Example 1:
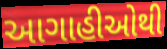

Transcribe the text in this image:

આગાહીઓથી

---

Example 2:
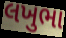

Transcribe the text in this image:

લખુભા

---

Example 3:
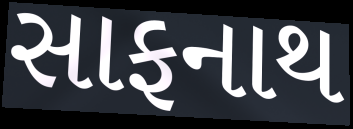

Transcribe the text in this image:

સાફનાથ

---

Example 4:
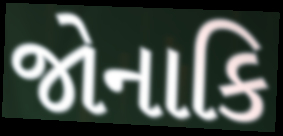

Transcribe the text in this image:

જોનાકિ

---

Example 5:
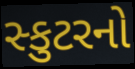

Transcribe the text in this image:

સ્કુટરનો